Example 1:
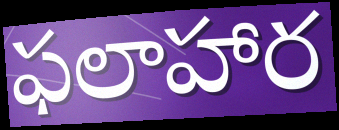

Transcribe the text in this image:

ఫలాహార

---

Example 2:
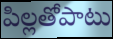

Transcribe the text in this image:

పిల్లతోపాటు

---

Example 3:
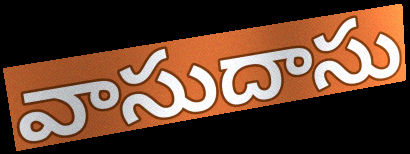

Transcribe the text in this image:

వాసుదాసు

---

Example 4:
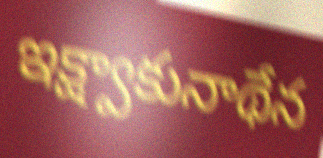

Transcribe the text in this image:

ఇక్ష్వాకునాథేన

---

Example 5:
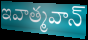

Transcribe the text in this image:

ఇవాత్మవాన్